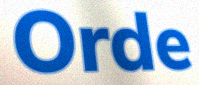
Orde